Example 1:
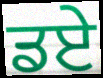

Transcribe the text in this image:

ਡਏ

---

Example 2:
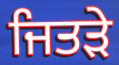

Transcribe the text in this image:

ਜਿਤੜੇ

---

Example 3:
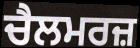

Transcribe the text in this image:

ਚੈਲਮਰਜ਼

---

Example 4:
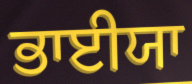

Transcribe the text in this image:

ਭਾਈਯਾ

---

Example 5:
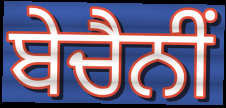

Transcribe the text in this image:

ਬੇਚੈਨੀਂ